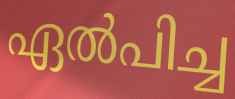
ഏൽപിച്ച